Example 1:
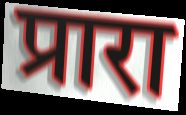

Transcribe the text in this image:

प्रारा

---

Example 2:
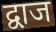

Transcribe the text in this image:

द्वाज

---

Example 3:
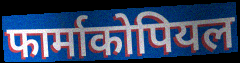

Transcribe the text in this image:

फार्माकोपियल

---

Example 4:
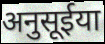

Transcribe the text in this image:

अनुसूईया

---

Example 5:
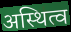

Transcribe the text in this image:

अस्थित्व